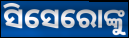
ସିସେରୋଙ୍କୁ